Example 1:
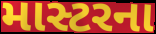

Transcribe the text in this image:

માસ્ટરના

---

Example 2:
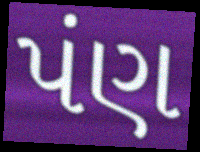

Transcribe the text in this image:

પંણ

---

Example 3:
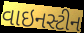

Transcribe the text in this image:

વાઇનસ્ટીન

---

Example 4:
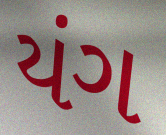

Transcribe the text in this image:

યંગ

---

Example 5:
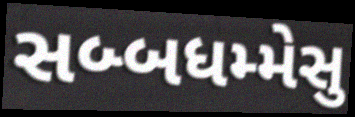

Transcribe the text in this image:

સબ્બધમ્મેસુ